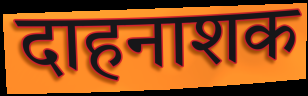
दाहनाशक